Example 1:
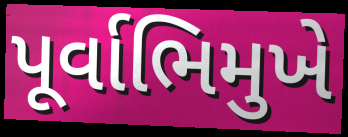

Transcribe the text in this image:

પૂર્વાભિમુખે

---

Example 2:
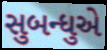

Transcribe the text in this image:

સુબન્ધુએ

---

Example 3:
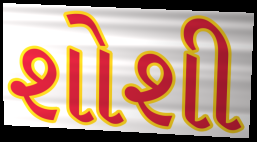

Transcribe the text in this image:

શોશી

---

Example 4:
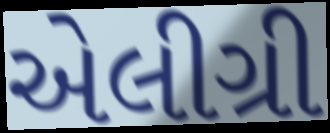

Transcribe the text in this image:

એલીગ્રી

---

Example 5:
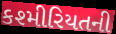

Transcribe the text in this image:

કશ્મીરિયતની